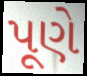
પૂણે